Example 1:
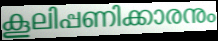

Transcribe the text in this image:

കൂലിപ്പണിക്കാരനും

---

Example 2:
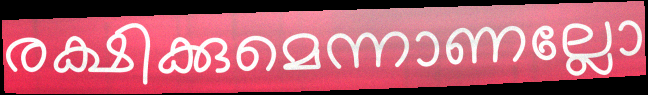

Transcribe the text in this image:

രക്ഷിക്കുമെന്നാണല്ലോ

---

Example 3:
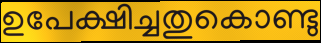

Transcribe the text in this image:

ഉപേക്ഷിച്ചതുകൊണ്ടു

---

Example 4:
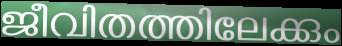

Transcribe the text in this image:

ജീവിതത്തിലേക്കും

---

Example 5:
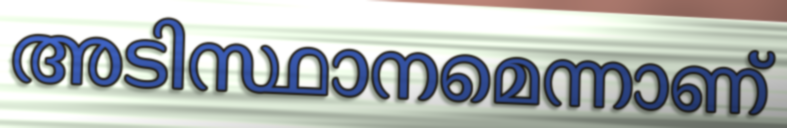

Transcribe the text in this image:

അടിസ്ഥാനമെന്നാണ്